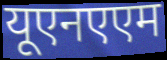
यूएनएएम